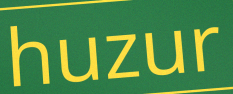
huzur